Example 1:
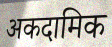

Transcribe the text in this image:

अकदामिक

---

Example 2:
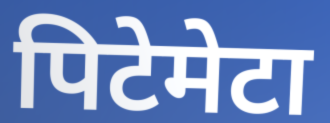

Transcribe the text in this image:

पिटेमेटा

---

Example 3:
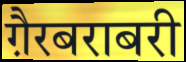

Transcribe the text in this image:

ग़ैरबराबरी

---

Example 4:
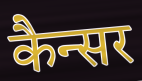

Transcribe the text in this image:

कैन्सर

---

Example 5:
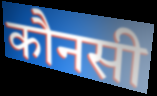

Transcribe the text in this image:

कौनसी